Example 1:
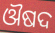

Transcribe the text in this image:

ଔଷଦ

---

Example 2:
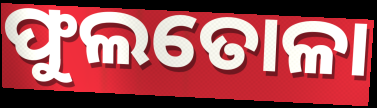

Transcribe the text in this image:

ଫୁଲତୋଳା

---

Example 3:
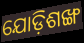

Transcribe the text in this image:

ଯୋଡ଼ିଶଙ୍ଖ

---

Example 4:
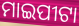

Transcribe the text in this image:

ମାଇପୀଟା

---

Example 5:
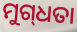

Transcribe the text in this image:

ମୁଗ୍‌ଧତା